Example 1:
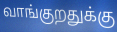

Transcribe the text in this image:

வாங்குறதுக்கு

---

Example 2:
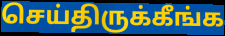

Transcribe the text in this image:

செய்திருக்கீங்க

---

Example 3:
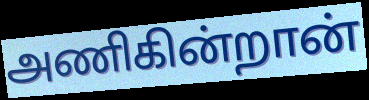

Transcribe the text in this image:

அணிகின்றான்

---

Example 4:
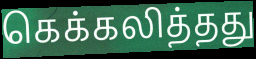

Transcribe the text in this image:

கெக்கலித்தது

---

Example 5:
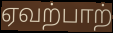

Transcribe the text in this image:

ஏவற்பாற்